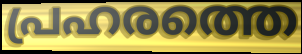
പ്രഹരത്തെ